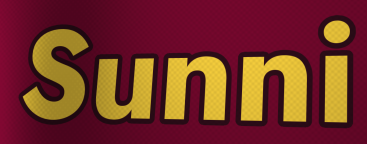
Sunni